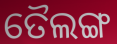
ତୈଲଙ୍ଗ